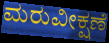
ಮರುವೀಕ್ಷಣೆ